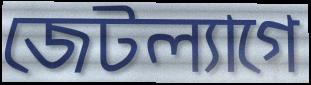
জেটল্যাগে